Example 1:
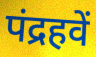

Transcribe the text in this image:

पंद्रहवें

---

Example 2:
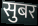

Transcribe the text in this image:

सुबर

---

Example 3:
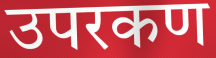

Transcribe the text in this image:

उपरकण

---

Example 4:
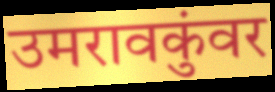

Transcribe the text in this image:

उमरावकुंवर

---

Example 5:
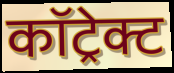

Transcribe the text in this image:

कॉट्रेक्ट